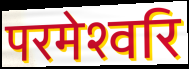
परमेश्वरि